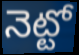
నెట్టో